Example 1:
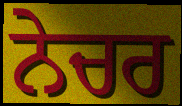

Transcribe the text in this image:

ਨੇਚਰ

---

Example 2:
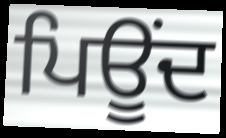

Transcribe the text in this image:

ਪਿਊਂਦ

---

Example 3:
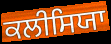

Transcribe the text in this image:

ਕਲੀਸਿਯਾ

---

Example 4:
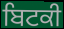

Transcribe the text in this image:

ਬਿਟਕੀ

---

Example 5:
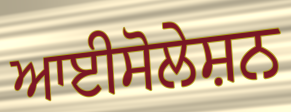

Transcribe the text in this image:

ਆਈਸੋਲੇਸ਼ਨ